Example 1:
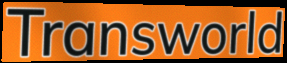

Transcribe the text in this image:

Transworld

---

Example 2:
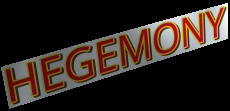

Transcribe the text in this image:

HEGEMONY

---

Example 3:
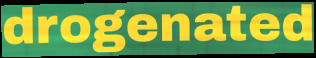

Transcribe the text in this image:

drogenated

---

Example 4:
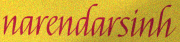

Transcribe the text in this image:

narendarsinh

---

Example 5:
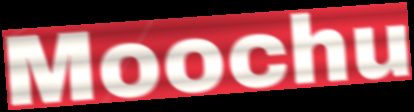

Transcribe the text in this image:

Moochu